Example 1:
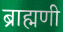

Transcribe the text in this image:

ब्राह्मणी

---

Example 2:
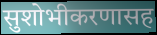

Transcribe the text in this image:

सुशोभीकरणासह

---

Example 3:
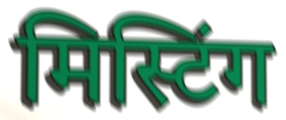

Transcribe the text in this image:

मिस्टिंग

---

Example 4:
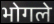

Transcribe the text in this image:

भोगले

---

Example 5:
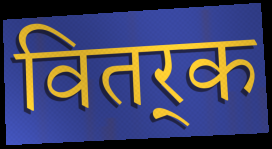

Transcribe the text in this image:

वितर्क